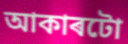
আকাৰটো